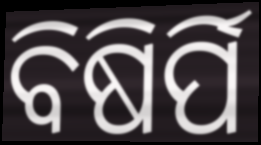
ବିଷିର୍ପି